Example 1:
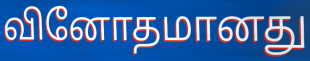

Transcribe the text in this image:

வினோதமானது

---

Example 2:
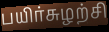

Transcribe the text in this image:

பயிர்சுழற்சி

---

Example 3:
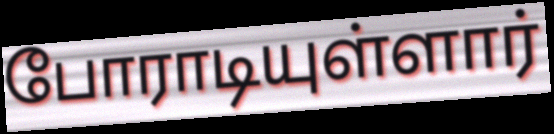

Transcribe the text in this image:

போராடியுள்ளார்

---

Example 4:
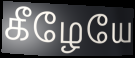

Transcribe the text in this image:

கீழேயே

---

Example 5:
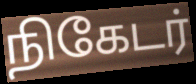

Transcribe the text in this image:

நிகேடர்